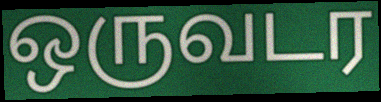
ஒருவடர